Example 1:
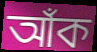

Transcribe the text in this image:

আঁক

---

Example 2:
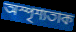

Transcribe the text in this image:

অস্পৃশ্যতাক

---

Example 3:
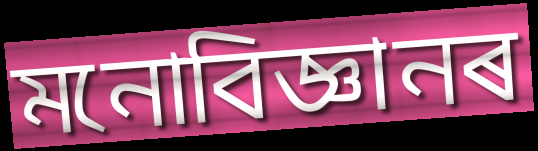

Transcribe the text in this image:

মনোবিজ্ঞানৰ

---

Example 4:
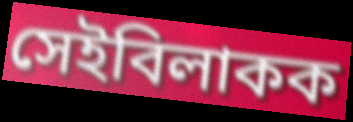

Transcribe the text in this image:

সেইবিলাকক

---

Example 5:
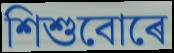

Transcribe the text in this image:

শিশুবোৰে